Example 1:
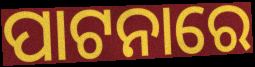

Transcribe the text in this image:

ପାଟନାରେ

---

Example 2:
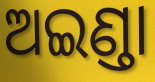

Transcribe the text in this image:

ଅଇଣ୍ଡା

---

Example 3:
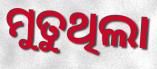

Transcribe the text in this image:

ମୁତୁଥିଲା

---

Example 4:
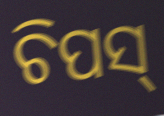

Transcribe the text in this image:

ଚିପସ୍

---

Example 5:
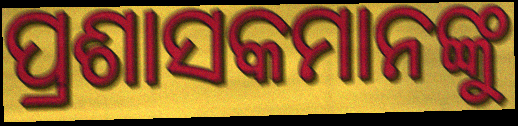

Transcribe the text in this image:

ପ୍ରଶାସକମାନଙ୍କୁ